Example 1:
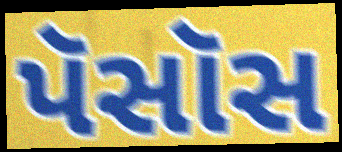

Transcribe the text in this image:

પૅસૉસ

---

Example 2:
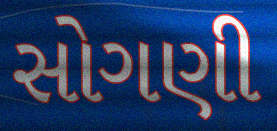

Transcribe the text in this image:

સોગણી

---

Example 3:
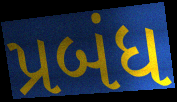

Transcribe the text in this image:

પ્રબંધ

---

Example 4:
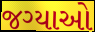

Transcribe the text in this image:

જગ્યાઓ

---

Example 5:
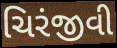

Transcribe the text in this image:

ચિરંજીવી